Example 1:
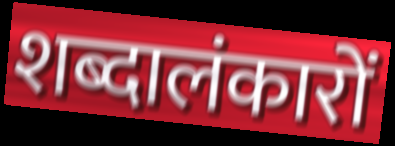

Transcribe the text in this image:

शब्दालंकारों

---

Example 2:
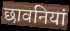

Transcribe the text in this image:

छावनियां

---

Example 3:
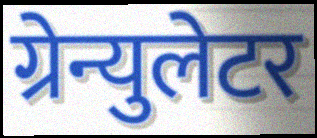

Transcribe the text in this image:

ग्रेन्युलेटर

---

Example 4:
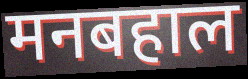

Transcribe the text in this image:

मनबहाल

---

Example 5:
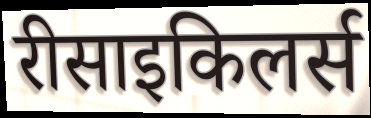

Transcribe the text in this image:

रीसाइकिलर्स